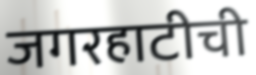
जगरहाटीची